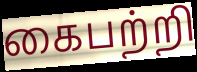
கைபற்றி